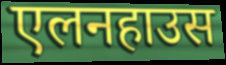
एलनहाउस